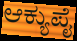
ಆಕ್ಯುಪೈ